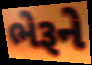
ભેરૂને